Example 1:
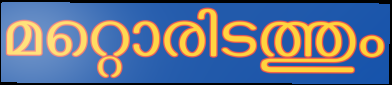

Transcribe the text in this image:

മറ്റൊരിടത്തും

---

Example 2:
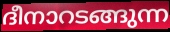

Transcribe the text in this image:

ദീനാറടങ്ങുന്ന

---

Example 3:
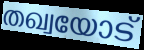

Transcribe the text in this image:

തഖ്വയോട്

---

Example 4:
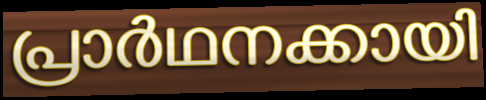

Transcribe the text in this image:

പ്രാർഥനക്കായി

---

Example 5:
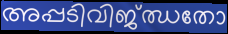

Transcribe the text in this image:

അപ്പടിവിജ്ഝതോ